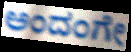
ಅಂದಂಗೇ